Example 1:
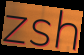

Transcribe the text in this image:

zsh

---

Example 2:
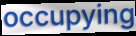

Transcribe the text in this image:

occupying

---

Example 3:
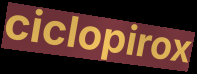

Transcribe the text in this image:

ciclopirox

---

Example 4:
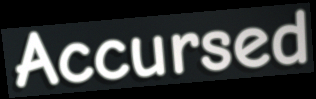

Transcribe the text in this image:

Accursed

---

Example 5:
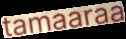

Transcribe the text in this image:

tamaaraa